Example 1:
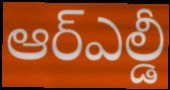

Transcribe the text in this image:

ఆర్ఎల్డీ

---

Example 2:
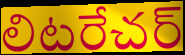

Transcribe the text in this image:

లిటరేచర్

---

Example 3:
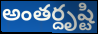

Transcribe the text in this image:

అంతర్దృష్టి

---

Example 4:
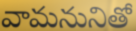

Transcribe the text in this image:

వామనునితో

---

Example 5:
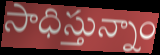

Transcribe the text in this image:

సాధిస్తున్నాం